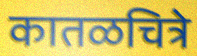
कातळचित्रे